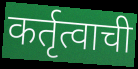
कर्तृत्वाची